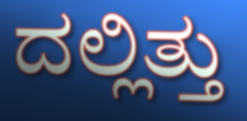
ದಲ್ಲಿತ್ತು